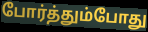
போர்த்தும்போது